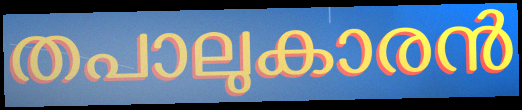
തപാലുകാരൻ